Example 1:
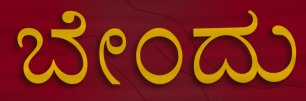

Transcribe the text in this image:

ಬೇಂದು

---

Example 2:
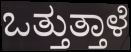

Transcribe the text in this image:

ಒತ್ತುತ್ತಾಳೆ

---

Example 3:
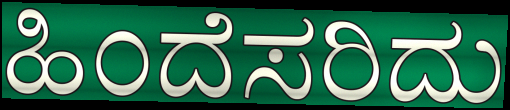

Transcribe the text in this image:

ಹಿಂದೆಸರಿದು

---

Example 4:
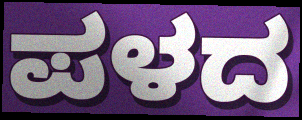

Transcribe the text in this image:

ಪಳದ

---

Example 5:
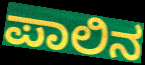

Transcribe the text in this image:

ಪಾಲಿನ